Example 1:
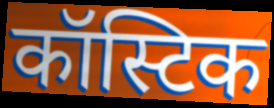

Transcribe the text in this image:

कॉस्टिक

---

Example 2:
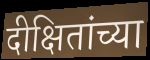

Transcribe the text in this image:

दीक्षितांच्या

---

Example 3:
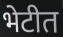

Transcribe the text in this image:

भेटीत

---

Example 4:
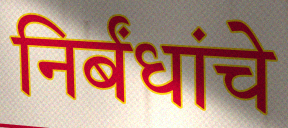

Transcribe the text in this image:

निर्बंधांचे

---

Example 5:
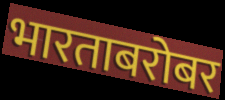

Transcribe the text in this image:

भारताबरोबर